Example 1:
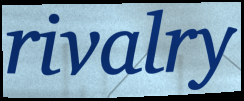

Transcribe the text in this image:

rivalry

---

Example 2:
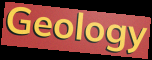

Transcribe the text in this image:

Geology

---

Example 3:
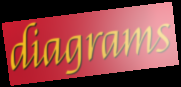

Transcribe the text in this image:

diagrams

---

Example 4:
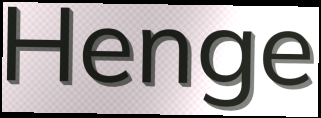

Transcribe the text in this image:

Henge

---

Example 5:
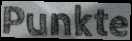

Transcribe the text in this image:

Punkte